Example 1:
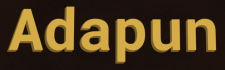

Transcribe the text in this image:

Adapun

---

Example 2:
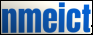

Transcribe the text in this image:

nmeict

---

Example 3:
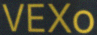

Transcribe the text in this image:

VEXo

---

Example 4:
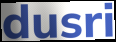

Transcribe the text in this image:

dusri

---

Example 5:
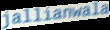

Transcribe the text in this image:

jallianwala